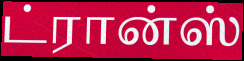
ட்ரான்ஸ்